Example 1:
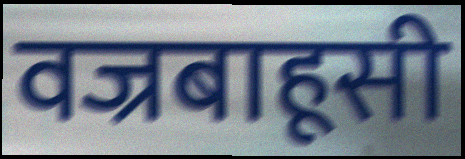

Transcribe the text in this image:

वज्रबाहूसी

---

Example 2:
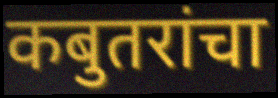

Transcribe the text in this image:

कबुतरांचा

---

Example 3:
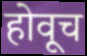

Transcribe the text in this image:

होवूच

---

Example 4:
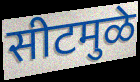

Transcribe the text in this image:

सीटमुळे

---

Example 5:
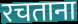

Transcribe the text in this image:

रचताना